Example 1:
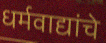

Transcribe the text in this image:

धर्मवाद्यांचे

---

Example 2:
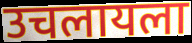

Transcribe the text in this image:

उचलायला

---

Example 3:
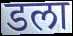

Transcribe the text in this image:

डला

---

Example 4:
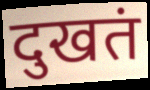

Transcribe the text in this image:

दुखतं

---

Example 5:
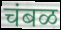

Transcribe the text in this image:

चंबळ